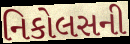
નિકોલસની